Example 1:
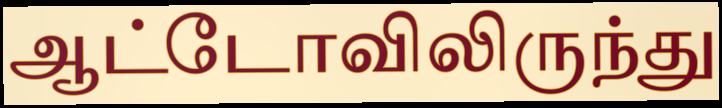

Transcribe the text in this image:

ஆட்டோவிலிருந்து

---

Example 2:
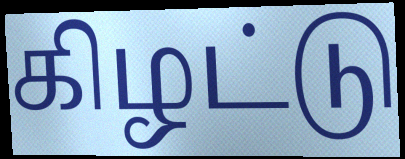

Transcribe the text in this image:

கிழட்டு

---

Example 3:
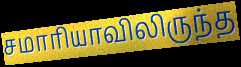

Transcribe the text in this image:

சமாரியாவிலிருந்த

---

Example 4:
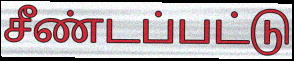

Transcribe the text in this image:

சீண்டப்பட்டு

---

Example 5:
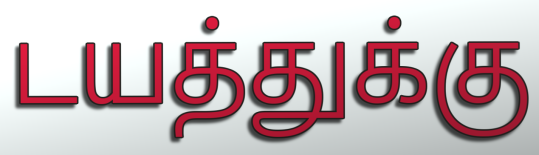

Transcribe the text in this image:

டயத்துக்கு